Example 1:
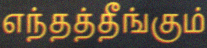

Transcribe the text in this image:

எந்தத்தீங்கும்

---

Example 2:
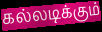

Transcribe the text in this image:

கல்லடிக்கும்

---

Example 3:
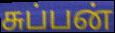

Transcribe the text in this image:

சுப்பன்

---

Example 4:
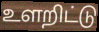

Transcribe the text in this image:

உளறிட்டு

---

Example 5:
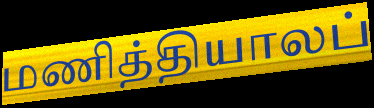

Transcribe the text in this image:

மணித்தியாலப்